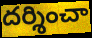
దర్శించా